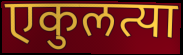
एकुलत्या